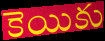
కెయికు